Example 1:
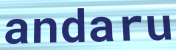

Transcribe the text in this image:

andaru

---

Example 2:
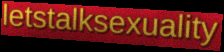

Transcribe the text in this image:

letstalksexuality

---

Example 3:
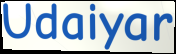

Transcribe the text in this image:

Udaiyar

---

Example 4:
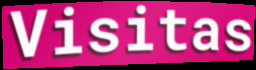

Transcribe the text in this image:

Visitas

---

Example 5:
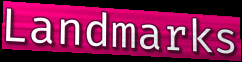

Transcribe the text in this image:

Landmarks